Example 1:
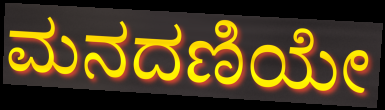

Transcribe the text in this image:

ಮನದಣಿಯೇ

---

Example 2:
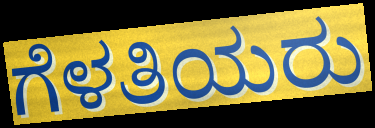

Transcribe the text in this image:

ಗೆಳತಿಯರು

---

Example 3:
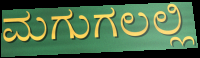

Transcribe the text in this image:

ಮಗುಗಲಲ್ಲಿ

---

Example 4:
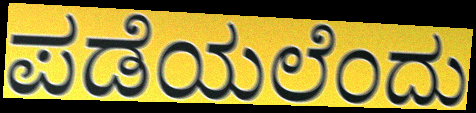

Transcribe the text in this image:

ಪಡೆಯಲೆಂದು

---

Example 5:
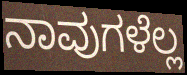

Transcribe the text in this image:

ನಾವುಗಳೆಲ್ಲ